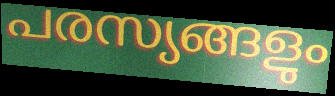
പരസ്യങ്ങളും